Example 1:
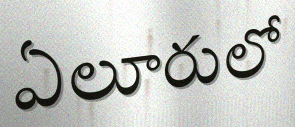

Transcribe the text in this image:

ఏలూరులో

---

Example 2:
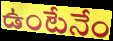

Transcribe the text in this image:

ఉంటేనేం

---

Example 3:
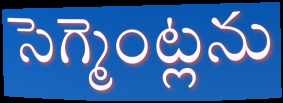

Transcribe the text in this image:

సెగ్మెంట్లను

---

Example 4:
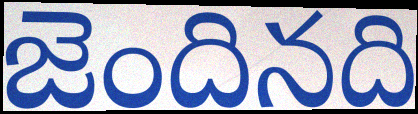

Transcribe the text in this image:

జెందినది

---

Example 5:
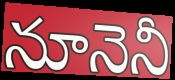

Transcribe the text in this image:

నూనెనీ